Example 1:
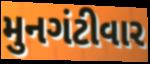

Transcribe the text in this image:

મુનગંટીવાર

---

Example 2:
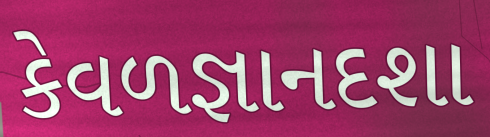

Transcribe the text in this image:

કેવળજ્ઞાનદશા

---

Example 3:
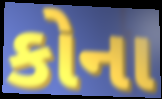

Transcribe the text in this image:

કોના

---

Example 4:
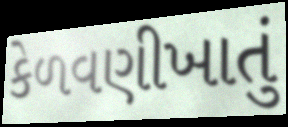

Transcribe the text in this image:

કેળવણીખાતું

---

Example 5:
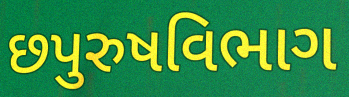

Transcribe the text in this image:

છપુરુષવિભાગ